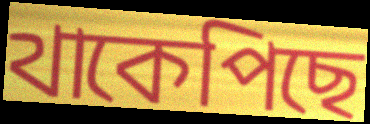
থাকেপিছে